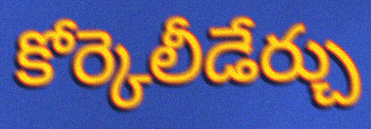
కోర్కెలీడేర్చు